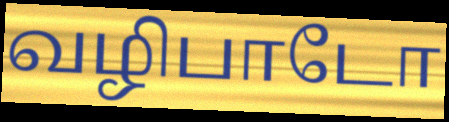
வழிபாடோ